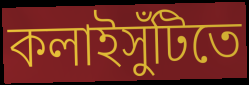
কলাইসুঁটিতে